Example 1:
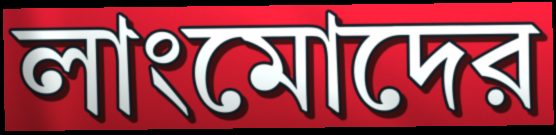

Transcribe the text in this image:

লাংমোদের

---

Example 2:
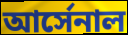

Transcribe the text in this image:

আর্সেনাল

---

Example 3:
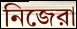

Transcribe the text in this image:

নিজেরা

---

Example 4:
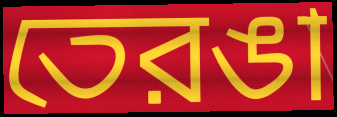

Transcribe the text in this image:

তেরঙা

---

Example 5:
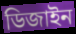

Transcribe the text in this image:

ডিজাইন